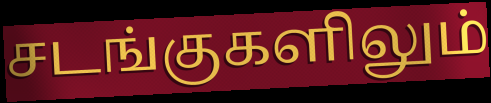
சடங்குகளிலும்